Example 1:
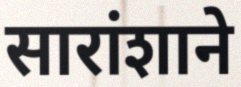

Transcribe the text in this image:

सारांशाने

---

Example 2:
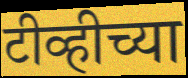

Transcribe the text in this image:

टीव्हीच्या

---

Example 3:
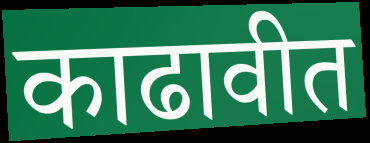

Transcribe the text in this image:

काढावीत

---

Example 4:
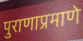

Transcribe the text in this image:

पुराणाप्रमाणे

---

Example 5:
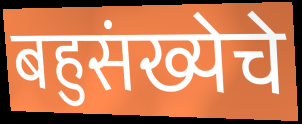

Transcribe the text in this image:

बहुसंख्येचे